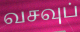
வசவுப்